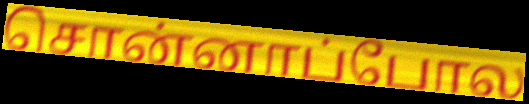
சொன்னாப்போல